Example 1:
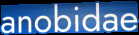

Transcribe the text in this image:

anobidae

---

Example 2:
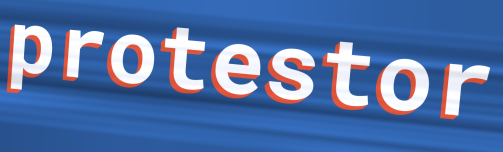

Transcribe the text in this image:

protestor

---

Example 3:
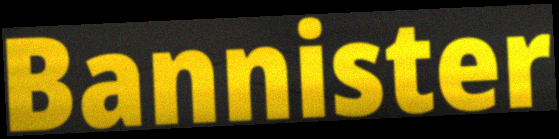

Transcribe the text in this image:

Bannister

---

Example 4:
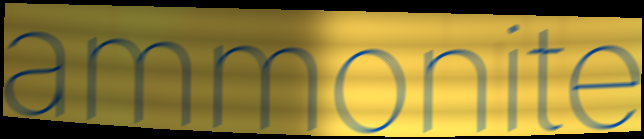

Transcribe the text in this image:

ammonite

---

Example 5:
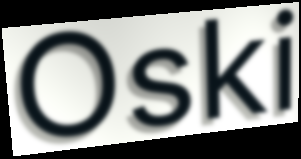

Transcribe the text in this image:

Oski